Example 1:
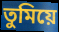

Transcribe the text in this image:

তুমিয়ে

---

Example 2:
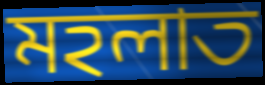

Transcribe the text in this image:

মহলাত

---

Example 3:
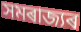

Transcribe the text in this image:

সমৰাজ্যৰ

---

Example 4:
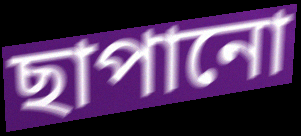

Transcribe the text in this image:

ছাপানো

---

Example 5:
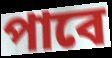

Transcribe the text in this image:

পাবে